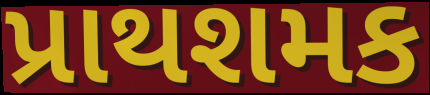
પ્રાથશમક